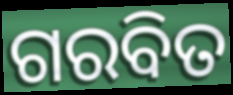
ଗରବିତ